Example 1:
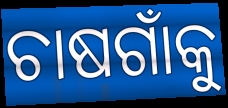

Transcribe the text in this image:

ଚାଷଗାଁକୁ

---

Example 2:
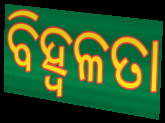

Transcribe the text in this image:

ବିହ୍ଵଳତା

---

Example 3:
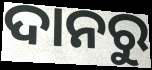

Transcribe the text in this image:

ଦାନରୁ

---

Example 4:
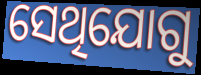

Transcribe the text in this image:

ସେଥିଯୋଗୁ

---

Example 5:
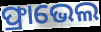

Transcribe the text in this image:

ଫ୍ରାଭେଲ